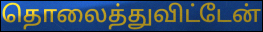
தொலைத்துவிட்டேன்